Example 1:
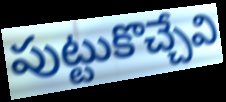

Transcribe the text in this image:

పుట్టుకొచ్చేవి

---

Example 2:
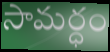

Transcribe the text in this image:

సామర్ధం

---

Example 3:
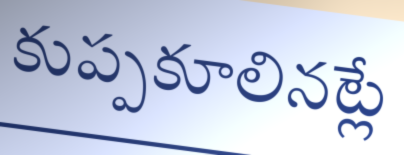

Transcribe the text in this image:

కుప్పకూలినట్లే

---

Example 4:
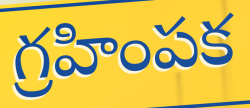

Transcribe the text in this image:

గ్రహింపక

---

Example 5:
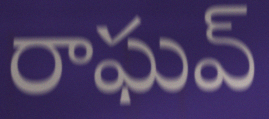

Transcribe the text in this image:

రాఘవ్